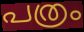
പത്രം